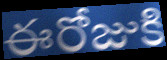
ఈరోజుకి